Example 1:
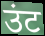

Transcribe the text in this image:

उंट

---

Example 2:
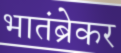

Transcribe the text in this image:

भातंब्रेकर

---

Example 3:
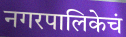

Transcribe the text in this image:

नगरपालिकेचं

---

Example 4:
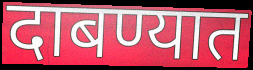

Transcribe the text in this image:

दाबण्यात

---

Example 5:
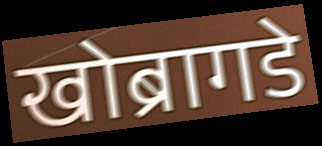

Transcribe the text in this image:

खोब्रागडे